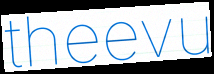
theevu